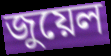
জুয়েল